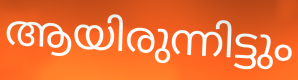
ആയിരുന്നിട്ടും